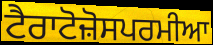
ਟੈਰਾਟੋਜ਼ੋਸਪਰਮੀਆ